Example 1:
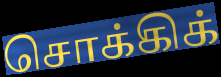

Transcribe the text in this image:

சொக்கிக்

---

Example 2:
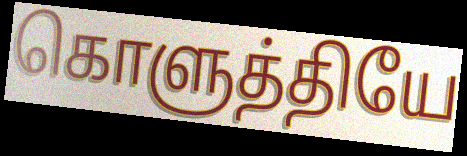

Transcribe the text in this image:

கொளுத்தியே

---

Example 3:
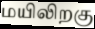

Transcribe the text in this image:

மயிலிறகு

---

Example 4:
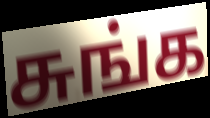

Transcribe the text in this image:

சுங்க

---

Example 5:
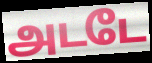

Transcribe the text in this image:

அடடே